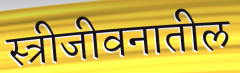
स्त्रीजीवनातील